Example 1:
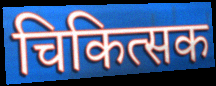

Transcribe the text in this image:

चिकित्सक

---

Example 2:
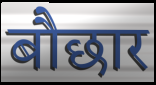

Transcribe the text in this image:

बौछार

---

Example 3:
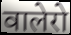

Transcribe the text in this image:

वालेरो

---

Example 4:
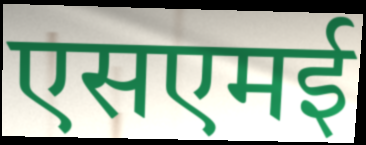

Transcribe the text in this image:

एसएमई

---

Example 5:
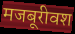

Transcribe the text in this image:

मजबूरीवश